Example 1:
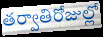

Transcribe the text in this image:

తర్వాతిరోజుల్లో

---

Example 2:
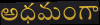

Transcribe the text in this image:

అధమంగా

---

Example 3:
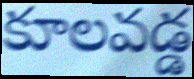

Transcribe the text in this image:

కూలవడ్డ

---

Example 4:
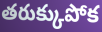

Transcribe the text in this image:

తరుక్కుపోక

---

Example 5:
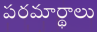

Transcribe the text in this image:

పరమార్థాలు